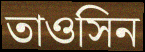
তাওসিন